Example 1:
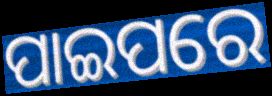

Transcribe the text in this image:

ପାଇପରେ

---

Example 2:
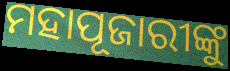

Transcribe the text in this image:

ମହାପୂଜାରୀଙ୍କୁ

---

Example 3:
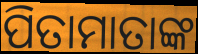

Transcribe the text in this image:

ପିତାମାତାଙ୍କ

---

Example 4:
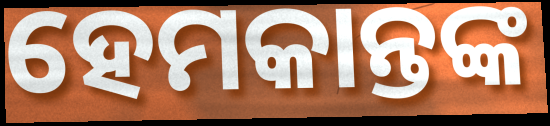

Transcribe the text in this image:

ହେମକାନ୍ତଙ୍କ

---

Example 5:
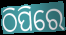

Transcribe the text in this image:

ଠିପିରେ